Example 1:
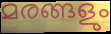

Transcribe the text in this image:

മരങ്ങളും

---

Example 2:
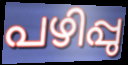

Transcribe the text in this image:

പഴിപ്പു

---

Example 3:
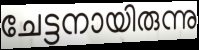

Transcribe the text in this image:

ചേട്ടനായിരുന്നു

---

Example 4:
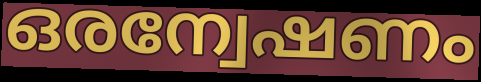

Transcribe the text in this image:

ഒരന്വേഷണം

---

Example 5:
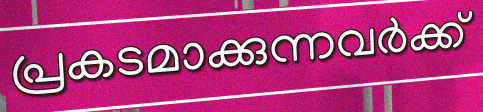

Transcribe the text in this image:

പ്രകടമാക്കുന്നവർക്ക്